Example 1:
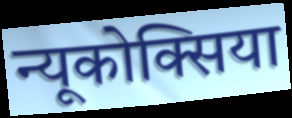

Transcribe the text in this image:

न्यूकोक्सिया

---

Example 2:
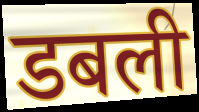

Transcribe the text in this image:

डबली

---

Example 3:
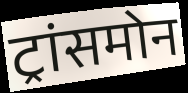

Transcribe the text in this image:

ट्रांसमोन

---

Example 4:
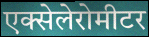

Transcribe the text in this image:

एक्सेलेरोमीटर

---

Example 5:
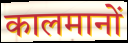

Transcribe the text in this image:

कालमानों